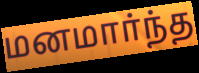
மனமார்ந்த